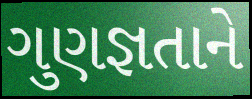
ગુણજ્ઞતાને